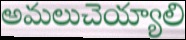
అమలుచెయ్యాలి